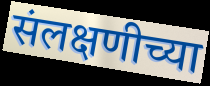
संलक्षणीच्या